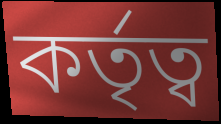
কৰ্তৃত্ব